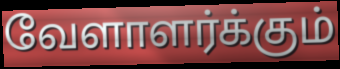
வேளாளர்க்கும்